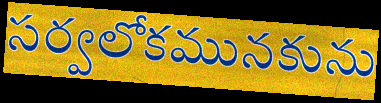
సర్వలోకమునకును